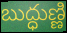
బుద్ధుణ్ణి